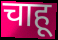
चाहू